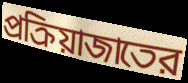
প্রক্রিয়াজাতের